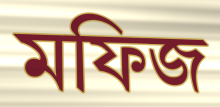
মফিজ